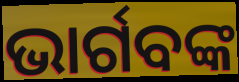
ଭାର୍ଗବଙ୍କ